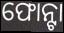
ଫୋନ୍ଟା